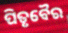
ପିତୃବୈର